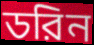
ডরিন